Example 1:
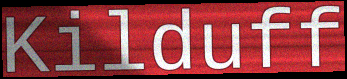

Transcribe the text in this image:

Kilduff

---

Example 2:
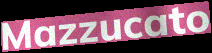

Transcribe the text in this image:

Mazzucato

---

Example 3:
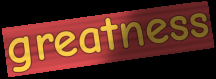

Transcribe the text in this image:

greatness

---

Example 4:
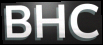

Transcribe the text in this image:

BHC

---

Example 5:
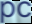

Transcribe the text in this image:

pc